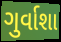
ગુર્વાશા